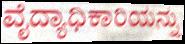
ವೈದ್ಯಾಧಿಕಾರಿಯನ್ನು